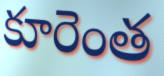
కూరెంత